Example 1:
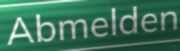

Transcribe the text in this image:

Abmelden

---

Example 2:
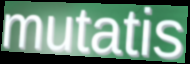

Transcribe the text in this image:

mutatis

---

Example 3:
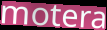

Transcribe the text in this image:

motera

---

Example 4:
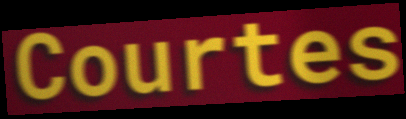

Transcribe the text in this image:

Courtes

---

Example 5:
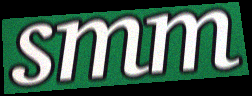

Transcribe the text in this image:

smm